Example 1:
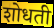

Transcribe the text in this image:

शोधती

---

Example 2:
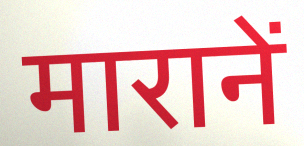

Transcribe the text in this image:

मारानें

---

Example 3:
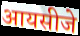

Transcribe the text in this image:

आयसीजे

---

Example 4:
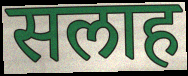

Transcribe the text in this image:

सलाह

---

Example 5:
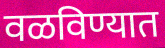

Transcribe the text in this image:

वळविण्यात